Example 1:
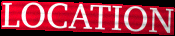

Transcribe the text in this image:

LOCATION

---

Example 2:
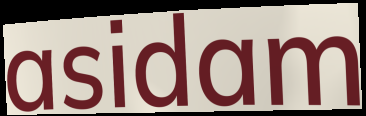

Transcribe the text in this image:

asidam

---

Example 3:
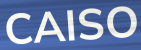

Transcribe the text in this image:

CAISO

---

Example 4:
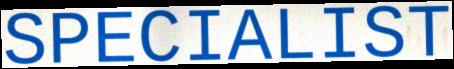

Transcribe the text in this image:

SPECIALIST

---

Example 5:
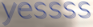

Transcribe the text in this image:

yessss